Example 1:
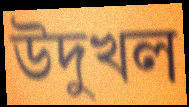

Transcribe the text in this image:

উদুখল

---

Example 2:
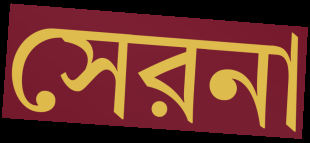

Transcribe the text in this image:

সেরনা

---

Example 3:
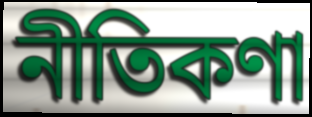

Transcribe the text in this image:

নীতিকণা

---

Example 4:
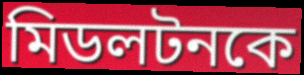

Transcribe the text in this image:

মিডলটনকে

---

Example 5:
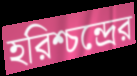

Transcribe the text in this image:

হরিশ্চন্দ্রের